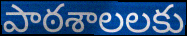
పాఠశాలలకు